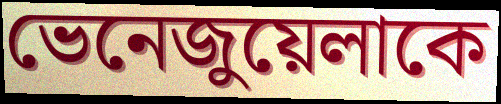
ভেনেজুয়েলাকে